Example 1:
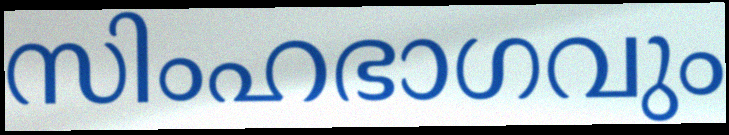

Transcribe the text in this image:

സിംഹഭാഗവും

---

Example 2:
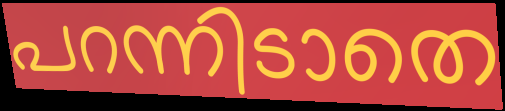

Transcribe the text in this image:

പറന്നിടാതെ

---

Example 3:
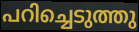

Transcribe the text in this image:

പറിച്ചെടുത്തു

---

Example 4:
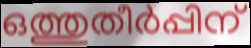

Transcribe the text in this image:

ഒത്തുതീർപ്പിന്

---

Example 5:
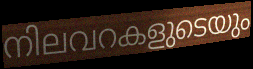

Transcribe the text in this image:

നിലവറകളുടെയും